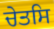
ਚੇਤਸਿ